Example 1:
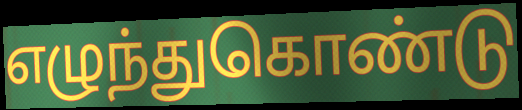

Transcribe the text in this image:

எழுந்துகொண்டு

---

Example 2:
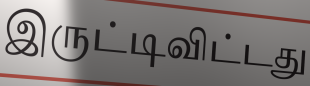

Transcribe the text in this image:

இருட்டிவிட்டது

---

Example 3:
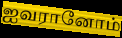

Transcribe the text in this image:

ஐவரானோம்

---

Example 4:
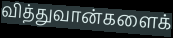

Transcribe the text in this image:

வித்துவான்களைக்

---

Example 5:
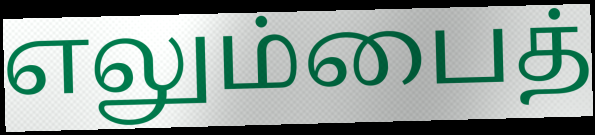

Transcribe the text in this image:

எலும்பைத்